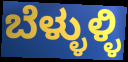
ಬೆಳ್ಳುಳ್ಳಿ